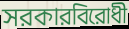
সরকারবিরোধী